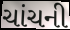
ચાંચની